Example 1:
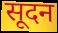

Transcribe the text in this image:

सूदन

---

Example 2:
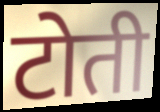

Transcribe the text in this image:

टोती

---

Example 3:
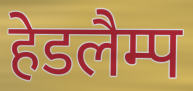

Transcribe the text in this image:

हेडलैम्प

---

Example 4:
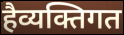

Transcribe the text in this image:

हैव्यक्तिगत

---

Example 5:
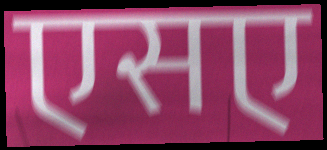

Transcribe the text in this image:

एसए